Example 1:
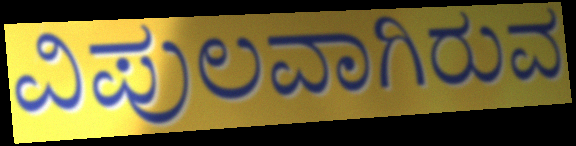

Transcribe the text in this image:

ವಿಪುಲವಾಗಿರುವ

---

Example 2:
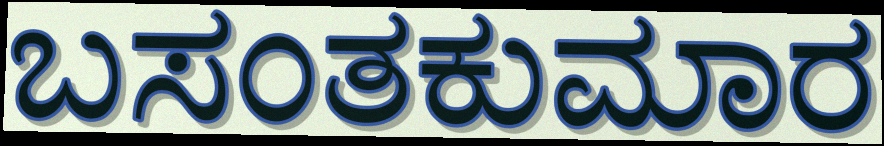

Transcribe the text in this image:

ಬಸಂತಕುಮಾರ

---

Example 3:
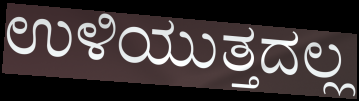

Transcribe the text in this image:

ಉಳಿಯುತ್ತದಲ್ಲ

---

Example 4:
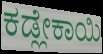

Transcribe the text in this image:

ಕಡ್ಲೇಕಾಯಿ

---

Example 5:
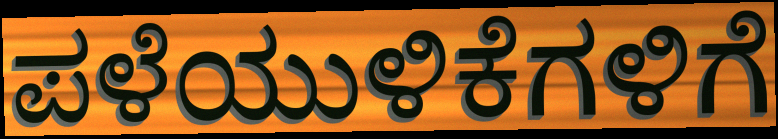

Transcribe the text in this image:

ಪಳೆಯುಳಿಕೆಗಳಿಗೆ